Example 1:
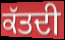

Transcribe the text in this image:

ਕੱਤਦੀ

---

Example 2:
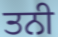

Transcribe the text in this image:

ਤਨੀ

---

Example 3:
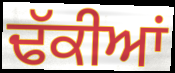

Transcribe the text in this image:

ਢੱਕੀਆਂ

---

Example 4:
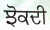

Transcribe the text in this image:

ਝੋਕਦੀ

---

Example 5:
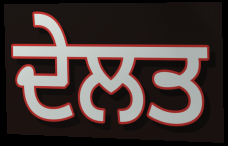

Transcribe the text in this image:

ਦੇਲਤ